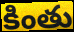
కింతు